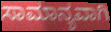
ಸಾಮಾನ್ಯವಾಗಿ